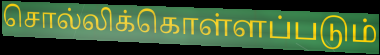
சொல்லிக்கொள்ளப்படும்